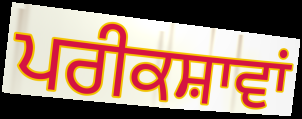
ਪਰੀਕਸ਼ਾਵਾਂ